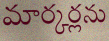
మార్కర్లను